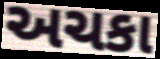
અચકા